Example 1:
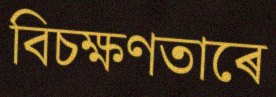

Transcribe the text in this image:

বিচক্ষণতাৰে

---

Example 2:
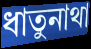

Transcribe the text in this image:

ধাতুনাথা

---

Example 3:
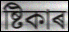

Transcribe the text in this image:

ষ্টিকাৰ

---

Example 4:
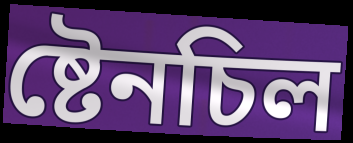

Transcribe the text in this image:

ষ্টেনচিল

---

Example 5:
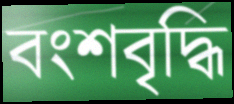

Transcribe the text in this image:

বংশবৃদ্ধি